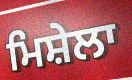
ਮਿਸ਼ੇਲਾ